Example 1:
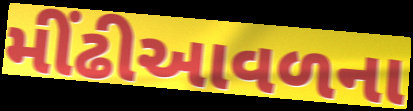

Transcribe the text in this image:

મીંઢીઆવળના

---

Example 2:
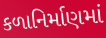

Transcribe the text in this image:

કળાનિર્માણમાં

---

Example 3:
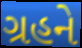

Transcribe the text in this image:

ગ્રહને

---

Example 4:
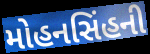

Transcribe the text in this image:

મોહનસિંહની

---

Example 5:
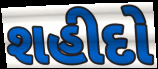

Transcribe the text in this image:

શહીદો